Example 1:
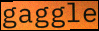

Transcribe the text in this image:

gaggle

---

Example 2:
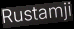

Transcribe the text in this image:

Rustamji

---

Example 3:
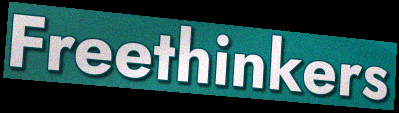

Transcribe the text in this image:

Freethinkers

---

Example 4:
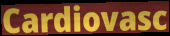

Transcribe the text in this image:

Cardiovasc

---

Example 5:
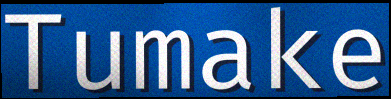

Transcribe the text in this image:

Tumake